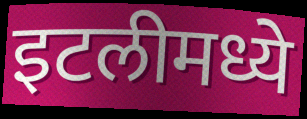
इटलीमध्ये